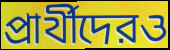
প্রার্থীদেরও